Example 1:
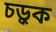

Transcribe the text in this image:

চড়ুক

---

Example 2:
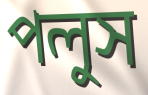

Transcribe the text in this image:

পলুস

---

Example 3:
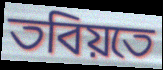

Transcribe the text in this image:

তবিয়তে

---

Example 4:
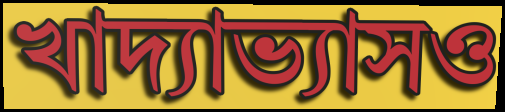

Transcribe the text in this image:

খাদ্যাভ্যাসও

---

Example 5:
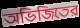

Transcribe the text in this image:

অভিজিতের